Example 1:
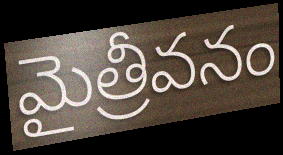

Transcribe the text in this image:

మైత్రీవనం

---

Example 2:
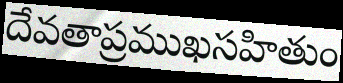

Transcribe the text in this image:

దేవతాప్రముఖసహితుం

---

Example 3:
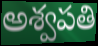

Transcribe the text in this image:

అశ్వపతి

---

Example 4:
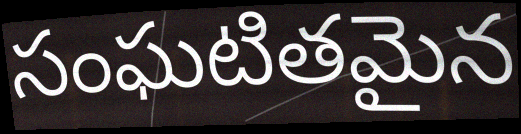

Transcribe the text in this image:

సంఘటితమైన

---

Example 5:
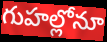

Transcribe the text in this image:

గుహల్లోనూ